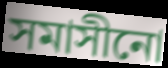
সমাসীনো